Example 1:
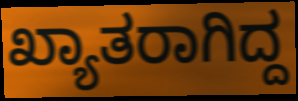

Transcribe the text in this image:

ಖ್ಯಾತರಾಗಿದ್ದ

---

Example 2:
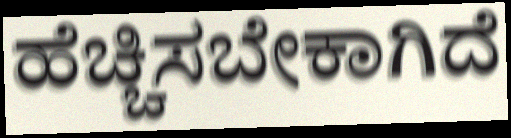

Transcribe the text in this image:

ಹೆಚ್ಚಿಸಬೇಕಾಗಿದೆ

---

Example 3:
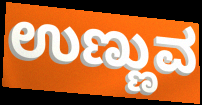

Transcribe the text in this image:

ಉಣ್ಣುವ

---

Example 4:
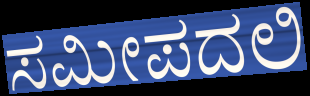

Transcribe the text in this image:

ಸಮೀಪದಲಿ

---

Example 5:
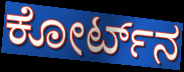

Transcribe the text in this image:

ಕೋರ್ಟ್‌ನ